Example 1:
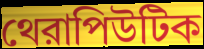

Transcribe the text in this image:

থেরাপিউটিক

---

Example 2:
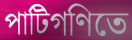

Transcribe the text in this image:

পাটিগণিতে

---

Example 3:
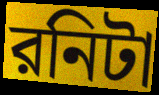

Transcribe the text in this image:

রনিটা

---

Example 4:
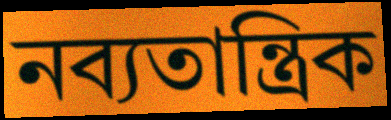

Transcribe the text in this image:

নব্যতান্ত্রিক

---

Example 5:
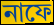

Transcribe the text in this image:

নাফে